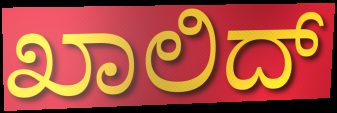
ಖಾಲಿದ್